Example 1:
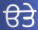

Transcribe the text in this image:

ੳਤੇ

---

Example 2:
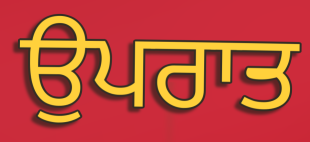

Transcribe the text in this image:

ਉਪਰਾਤ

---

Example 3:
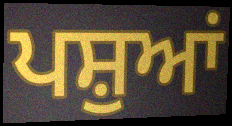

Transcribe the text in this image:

ਪਸ਼ੁਆਂ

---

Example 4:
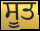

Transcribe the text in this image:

ਸੂਤ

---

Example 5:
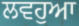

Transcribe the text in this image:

ਲਵਹੁਆ